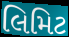
લિમિટ